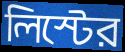
লিস্টের